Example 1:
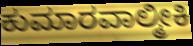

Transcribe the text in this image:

ಕುಮಾರವಾಲ್ಮೀಕಿ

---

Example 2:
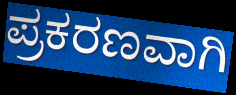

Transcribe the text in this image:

ಪ್ರಕರಣವಾಗಿ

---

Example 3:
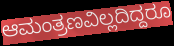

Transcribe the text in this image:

ಆಮಂತ್ರಣವಿಲ್ಲದಿದ್ದರೂ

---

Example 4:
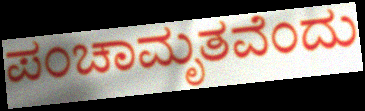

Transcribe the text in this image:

ಪಂಚಾಮೃತವೆಂದು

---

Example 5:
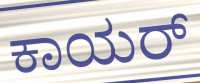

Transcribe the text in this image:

ಕಾಯರ್